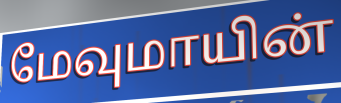
மேவுமாயின்